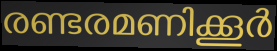
രണ്ടരമണിക്കൂർ